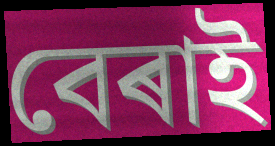
বেৰাই